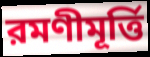
রমণীমূর্ত্তি